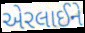
એરલાઈને